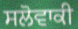
ਸਲੋਵਾਕੀ